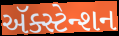
ઍક્સ્ટેન્શન